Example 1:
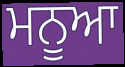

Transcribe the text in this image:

ਮਨੂਆ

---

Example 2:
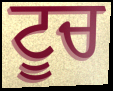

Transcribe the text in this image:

ਟੂਚ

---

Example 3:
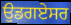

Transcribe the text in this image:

ਉਡਗਏਸਰ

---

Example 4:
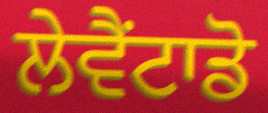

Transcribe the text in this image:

ਲੇਵੈਂਟਾਡੋ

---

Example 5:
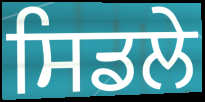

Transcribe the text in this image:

ਸਿਡਲੇ